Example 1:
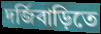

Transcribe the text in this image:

দর্জিবাড়িতে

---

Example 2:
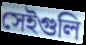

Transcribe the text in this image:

সেইগুলি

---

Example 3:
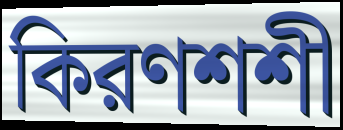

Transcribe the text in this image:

কিরণশশী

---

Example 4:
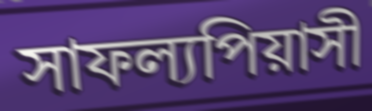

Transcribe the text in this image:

সাফল্যপিয়াসী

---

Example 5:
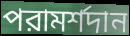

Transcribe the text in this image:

পরামর্শদান